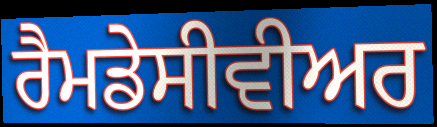
ਰੈਮਡੇਸੀਵੀਅਰ